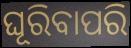
ଘୂରିବାପରି